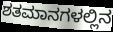
ಶತಮಾನಗಳಲ್ಲಿನ